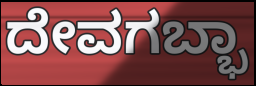
ದೇವಗಬ್ಭಾ